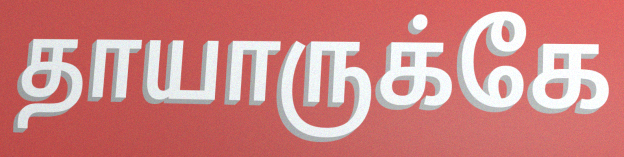
தாயாருக்கே